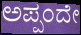
ಅಪ್ಪಂದೇ